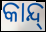
କାନ୍ଦ୍